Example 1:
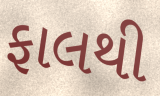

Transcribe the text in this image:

ફાલથી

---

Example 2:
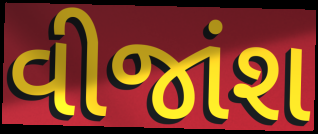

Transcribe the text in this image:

વીજાંશ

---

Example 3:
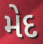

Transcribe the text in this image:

મેદ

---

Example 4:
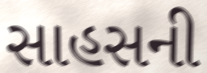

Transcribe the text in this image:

સાહસની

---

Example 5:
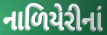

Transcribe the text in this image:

નાળિયેરીનાં